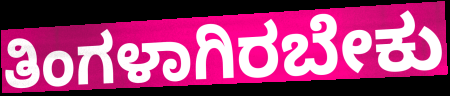
ತಿಂಗಳಾಗಿರಬೇಕು